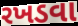
રખડવા